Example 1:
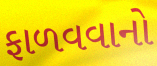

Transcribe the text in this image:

ફાળવવાનો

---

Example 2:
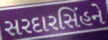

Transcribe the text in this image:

સરદારસિંહને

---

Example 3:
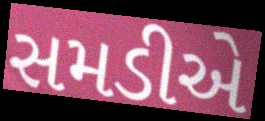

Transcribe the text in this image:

સમડીએ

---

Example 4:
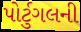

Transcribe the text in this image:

પોર્ટુગલની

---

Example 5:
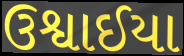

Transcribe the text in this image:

ઉશ્વાઈયા